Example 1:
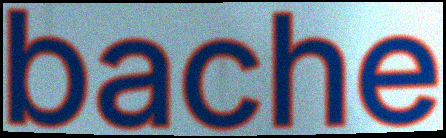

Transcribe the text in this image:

bache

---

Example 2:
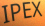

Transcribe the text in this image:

IPEX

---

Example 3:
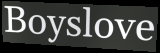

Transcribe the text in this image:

Boyslove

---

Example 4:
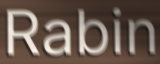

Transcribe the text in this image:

Rabin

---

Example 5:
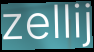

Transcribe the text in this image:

zellij